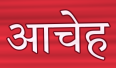
आचेह